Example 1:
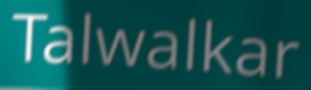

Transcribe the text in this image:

Talwalkar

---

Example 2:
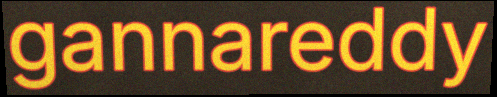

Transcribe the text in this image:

gannareddy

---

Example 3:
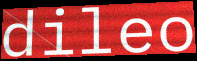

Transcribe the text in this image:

dileo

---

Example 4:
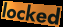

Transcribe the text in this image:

locked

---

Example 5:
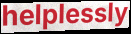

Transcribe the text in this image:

helplessly